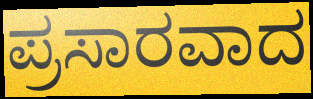
ಪ್ರಸಾರವಾದ